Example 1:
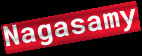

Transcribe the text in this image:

Nagasamy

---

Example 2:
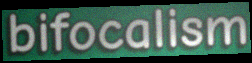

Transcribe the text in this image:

bifocalism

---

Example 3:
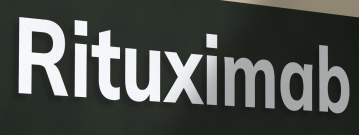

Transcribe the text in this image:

Rituximab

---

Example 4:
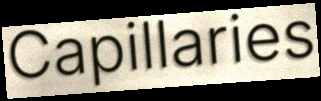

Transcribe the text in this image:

Capillaries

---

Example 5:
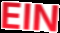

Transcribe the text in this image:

EIN